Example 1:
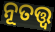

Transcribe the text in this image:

ନୂତତ୍ତ୍ଵ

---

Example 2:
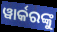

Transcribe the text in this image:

ୱାର୍କରଙ୍କୁ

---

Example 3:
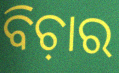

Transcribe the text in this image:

ବିଚ଼ାର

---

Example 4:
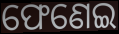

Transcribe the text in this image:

ଫେଣେଇ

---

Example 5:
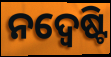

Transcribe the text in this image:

ନଦ୍ୱେଷ୍ଟି